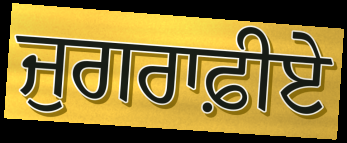
ਜੁਗਰਾਫ਼ੀਏ